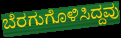
ಬೆರಗುಗೊಳಿಸಿದ್ದವು